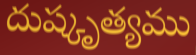
దుష్కృత్యము